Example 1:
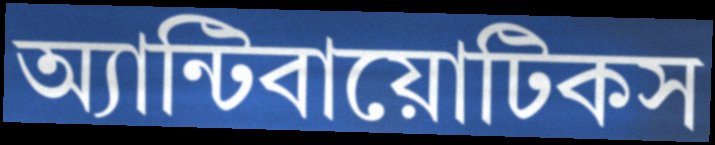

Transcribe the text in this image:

অ্যান্টিবায়োটিকস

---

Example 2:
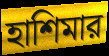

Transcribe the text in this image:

হাশিমার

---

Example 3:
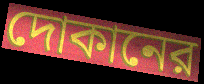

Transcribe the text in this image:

দোকানের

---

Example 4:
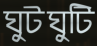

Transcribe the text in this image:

ঘুটঘুটি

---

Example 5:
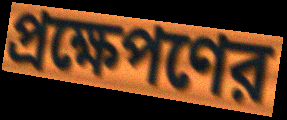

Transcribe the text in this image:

প্রক্ষেপণের